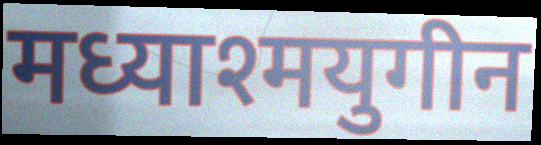
मध्याश्मयुगीन